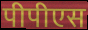
पीपीएस